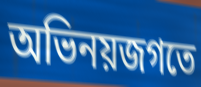
অভিনয়জগতে